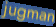
jugman